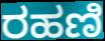
ರಹಣಿ